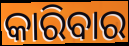
କାରିବାର